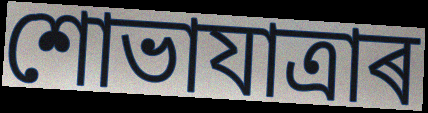
শোভাযাত্ৰাৰ